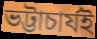
ভট্টাচাৰ্যই